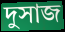
দুসাজ